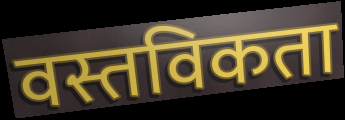
वस्तविकता